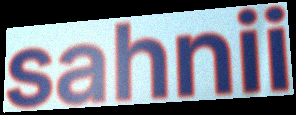
sahnii